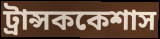
ট্রান্সককেশাস